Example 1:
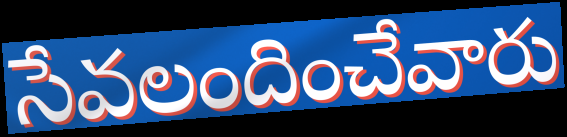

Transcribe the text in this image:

సేవలందించేవారు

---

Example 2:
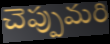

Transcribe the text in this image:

చెప్పుమరి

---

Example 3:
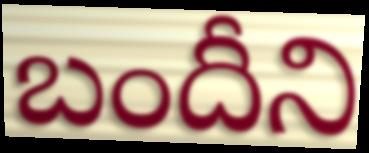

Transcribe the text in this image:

బందీని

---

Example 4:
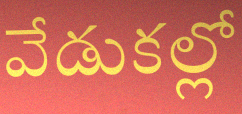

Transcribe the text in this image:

వేడుకల్లో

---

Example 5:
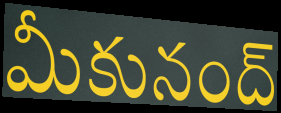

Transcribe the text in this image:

మీకునంద్